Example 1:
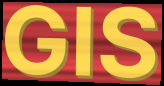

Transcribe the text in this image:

GIS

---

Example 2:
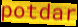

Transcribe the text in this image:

potdar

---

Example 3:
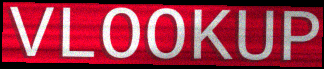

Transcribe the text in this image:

VLOOKUP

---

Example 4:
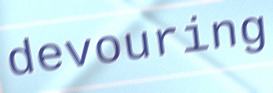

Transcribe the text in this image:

devouring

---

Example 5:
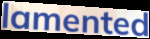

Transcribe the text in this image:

lamented